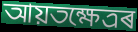
আয়তক্ষেত্ৰৰ